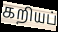
கறியப்